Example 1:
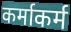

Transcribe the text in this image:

कर्माकर्म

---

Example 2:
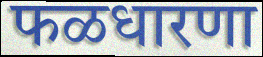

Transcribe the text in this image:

फळधारणा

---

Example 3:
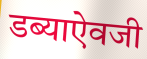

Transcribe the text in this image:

डब्याऐवजी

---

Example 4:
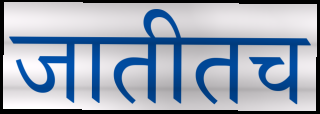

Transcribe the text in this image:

जातीतच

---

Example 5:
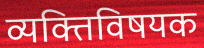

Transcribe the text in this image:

व्यक्तिविषयक